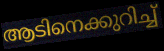
ആടിനെക്കുറിച്ച്